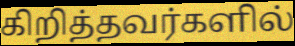
கிறித்தவர்களில்